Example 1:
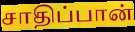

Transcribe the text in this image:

சாதிப்பான்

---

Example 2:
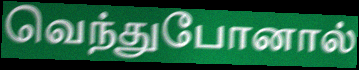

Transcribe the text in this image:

வெந்துபோனால்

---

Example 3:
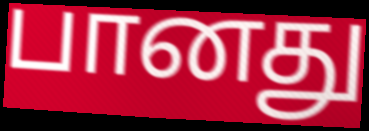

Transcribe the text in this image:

பானது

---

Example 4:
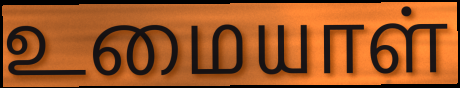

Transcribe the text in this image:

உமையாள்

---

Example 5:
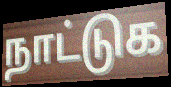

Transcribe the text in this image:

நாட்டுக